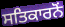
ਸਤਿਕਾਰਨੋਂ